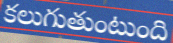
కలుగుతుంటుంది